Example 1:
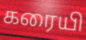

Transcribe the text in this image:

கரையி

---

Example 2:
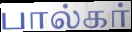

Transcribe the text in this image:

பால்கர்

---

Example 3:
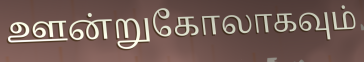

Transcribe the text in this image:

ஊன்றுகோலாகவும்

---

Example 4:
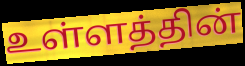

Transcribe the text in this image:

உள்ளத்தின்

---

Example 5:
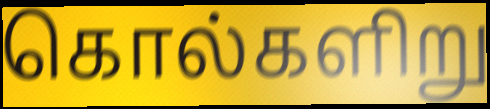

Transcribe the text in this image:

கொல்களிறு